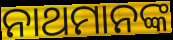
ନାଥମାନଙ୍କ